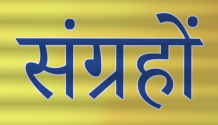
संग्रहों